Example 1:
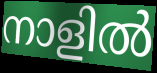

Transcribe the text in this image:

നാളിൽ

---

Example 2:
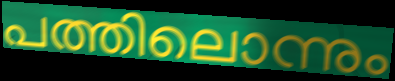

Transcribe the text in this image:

പത്തിലൊന്നും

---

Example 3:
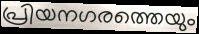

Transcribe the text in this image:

പ്രിയനഗരത്തെയും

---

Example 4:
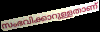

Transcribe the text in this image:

സംഭവിക്കാറുള്ളതാണ്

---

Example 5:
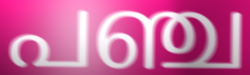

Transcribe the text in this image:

പഞ്ച